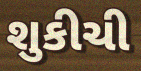
શુકીચી